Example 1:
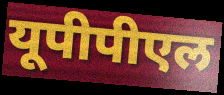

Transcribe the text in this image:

यूपीपीएल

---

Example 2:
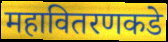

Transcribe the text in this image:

महावितरणकडे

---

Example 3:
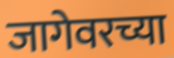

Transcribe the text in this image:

जागेवरच्या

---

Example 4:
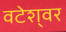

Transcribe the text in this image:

वटेश्वर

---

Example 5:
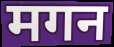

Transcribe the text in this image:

मगन